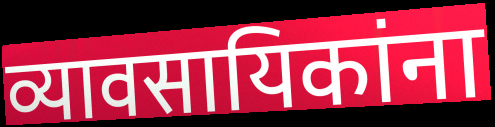
व्यावसायिकांना